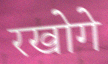
रखोगे